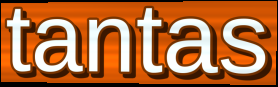
tantas